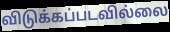
விடுக்கப்படவில்லை